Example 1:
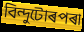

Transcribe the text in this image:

বিন্দুটোৰপৰা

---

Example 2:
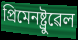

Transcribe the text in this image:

প্ৰিমেনষ্ট্ৰুৱেল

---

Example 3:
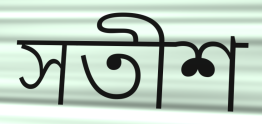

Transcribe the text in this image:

সতীশ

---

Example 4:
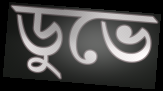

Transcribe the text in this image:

ডুভে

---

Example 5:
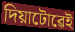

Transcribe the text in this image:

দিয়াটোৱেই